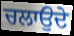
ਚਲਾਉਦੇ